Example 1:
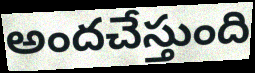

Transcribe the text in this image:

అందచేస్తుంది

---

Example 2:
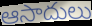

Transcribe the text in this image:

ఆసాదులు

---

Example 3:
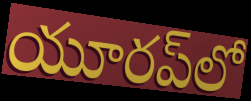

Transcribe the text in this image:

యూరప్‌లో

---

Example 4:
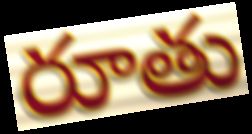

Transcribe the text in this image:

రూతు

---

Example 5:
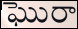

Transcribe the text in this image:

ఘొరా